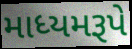
માધ્યમરૂપે